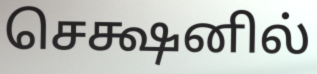
செக்ஷனில்